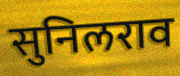
सुनिलराव